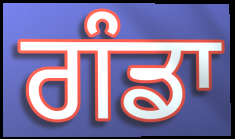
ਗੰਡਾ